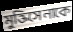
মুক্তিসেনাকে